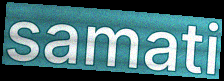
samati